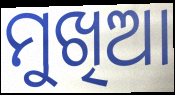
ମୁଖିଆ